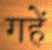
गहें